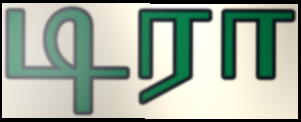
டிரா